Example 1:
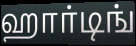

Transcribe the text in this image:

ஹார்டிங்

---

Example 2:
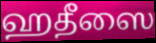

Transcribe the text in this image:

ஹதீஸை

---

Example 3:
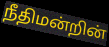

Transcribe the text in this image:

நீதிமன்றின்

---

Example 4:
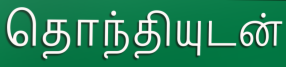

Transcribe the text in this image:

தொந்தியுடன்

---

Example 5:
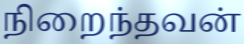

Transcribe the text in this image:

நிறைந்தவன்